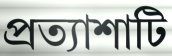
প্রত্যাশাটি